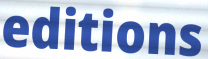
editions